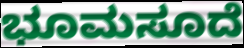
ಭೂಮಸೂದೆ